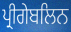
ਪ੍ਰੀਗੇਬਲਿਨ